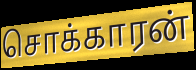
சொக்காரன்